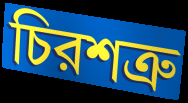
চিরশত্রু